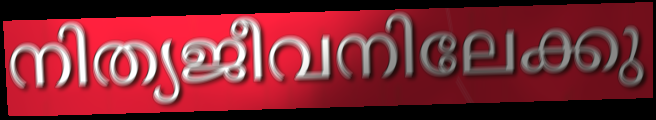
നിത്യജീവനിലേക്കു